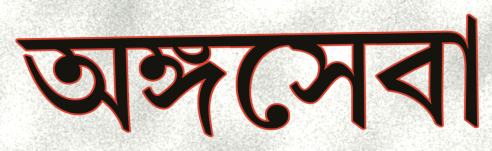
অঙ্গসেবা